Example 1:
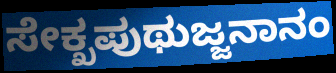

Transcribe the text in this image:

ಸೇಕ್ಖಪುಥುಜ್ಜನಾನಂ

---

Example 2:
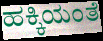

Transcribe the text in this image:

ಹಕ್ಕಿಯಂತೆ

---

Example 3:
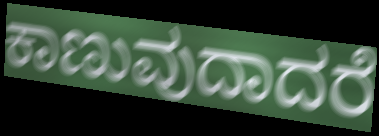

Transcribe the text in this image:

ಕಾಣುವುದಾದರೆ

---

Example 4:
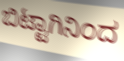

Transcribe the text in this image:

ಬಿಟ್ಟಾಗಿನಿಂದ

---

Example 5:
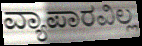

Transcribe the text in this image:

ವ್ಯಾಪಾರವಿಲ್ಲ